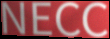
NECC